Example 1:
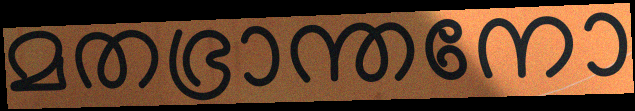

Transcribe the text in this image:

മതഭ്രാന്തനോ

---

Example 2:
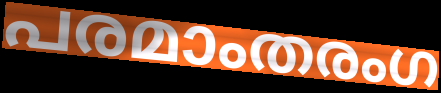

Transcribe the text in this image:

പരമാംതരംഗ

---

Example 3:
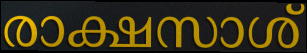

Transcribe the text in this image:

രാക്ഷസാശ്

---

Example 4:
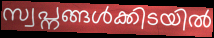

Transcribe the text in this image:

സ്വപ്നങ്ങൾക്കിടയിൽ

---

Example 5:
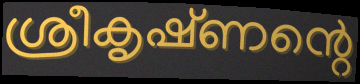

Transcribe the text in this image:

ശ്രീകൃഷ്‌ണന്റെ